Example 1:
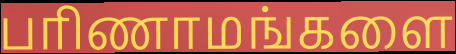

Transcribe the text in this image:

பரிணாமங்களை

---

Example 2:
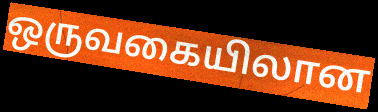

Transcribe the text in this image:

ஒருவகையிலான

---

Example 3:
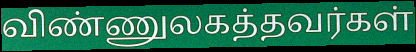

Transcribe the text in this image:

விண்ணுலகத்தவர்கள்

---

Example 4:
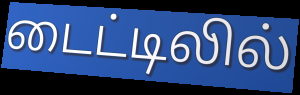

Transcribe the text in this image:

டைட்டிலில்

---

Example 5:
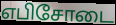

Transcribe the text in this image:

எபிசோடை